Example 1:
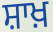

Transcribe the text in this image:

ਸ਼ਾਖ਼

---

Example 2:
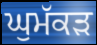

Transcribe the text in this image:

ਘੁਮੱਕਡ਼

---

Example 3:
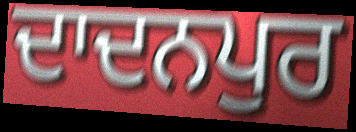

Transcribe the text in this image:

ਦਾਦਨਪੁਰ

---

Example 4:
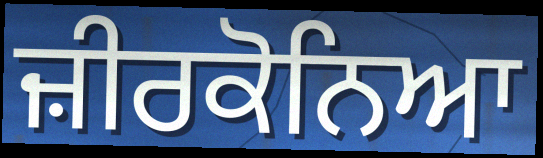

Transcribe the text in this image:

ਜ਼ੀਰਕੋਨਿਆ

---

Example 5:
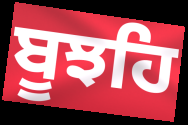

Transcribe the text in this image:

ਬੂਝਹਿ